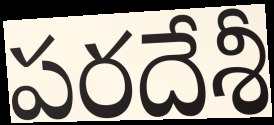
పరదేశీ